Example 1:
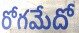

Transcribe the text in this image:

రోగమేదో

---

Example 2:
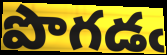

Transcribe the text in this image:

పొగడఁ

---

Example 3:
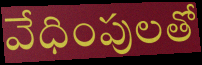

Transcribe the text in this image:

వేధింపులతో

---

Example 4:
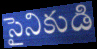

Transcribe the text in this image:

సైనికుడి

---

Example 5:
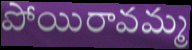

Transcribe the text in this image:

పోయిరావమ్మ